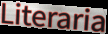
Literaria